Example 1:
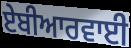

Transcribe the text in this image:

ਏਬੀਆਰਵਾਈ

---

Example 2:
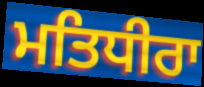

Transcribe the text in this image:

ਮਤਿਧੀਰਾ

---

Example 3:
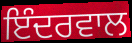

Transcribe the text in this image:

ਇੰਦਰਵਾਲ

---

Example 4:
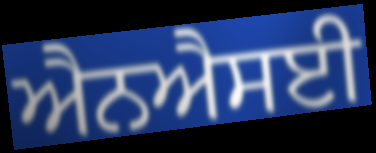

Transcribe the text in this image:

ਐਨਐਸਈ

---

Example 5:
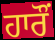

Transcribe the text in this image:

ਹਾਰੌਂ